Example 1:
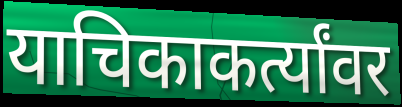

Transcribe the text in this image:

याचिकाकर्त्यांवर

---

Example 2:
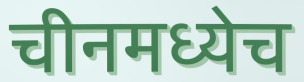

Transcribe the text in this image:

चीनमध्येच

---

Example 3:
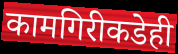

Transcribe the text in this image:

कामगिरीकडेही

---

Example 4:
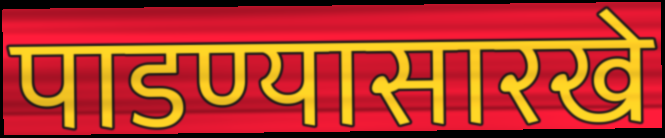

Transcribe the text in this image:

पाडण्यासारखे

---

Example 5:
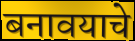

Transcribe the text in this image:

बनावयाचे